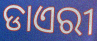
ଡାଏରୀ